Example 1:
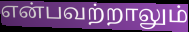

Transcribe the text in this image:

என்பவற்றாலும்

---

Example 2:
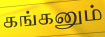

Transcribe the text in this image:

கங்கனும்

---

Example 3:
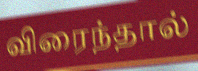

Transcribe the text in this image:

விரைந்தால்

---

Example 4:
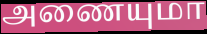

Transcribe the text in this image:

அணையுமா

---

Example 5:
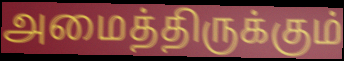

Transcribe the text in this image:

அமைத்திருக்கும்